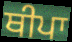
ਥੀਪਾ